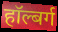
हॉल्बर्ग